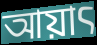
আয়াৎ